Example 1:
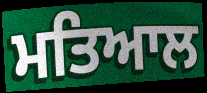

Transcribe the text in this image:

ਮਤਿਆਲ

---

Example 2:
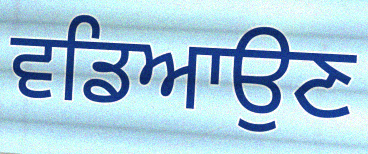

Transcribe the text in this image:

ਵਡਿਆਉਣ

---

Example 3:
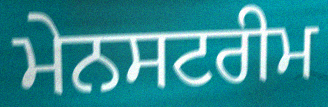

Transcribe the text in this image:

ਮੇਨਸਟਰੀਮ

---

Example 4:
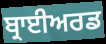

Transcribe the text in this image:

ਬ੍ਰਾਈਅਰਡ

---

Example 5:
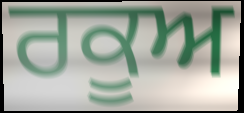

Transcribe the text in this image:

ਰਕੂਅ